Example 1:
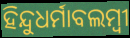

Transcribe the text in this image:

ହିନ୍ଦୁଧର୍ମାବଲମ୍ବୀ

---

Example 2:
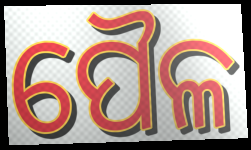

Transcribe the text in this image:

ପୈଳ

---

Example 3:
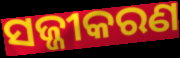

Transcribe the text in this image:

ସଜ୍ଜୀକରଣ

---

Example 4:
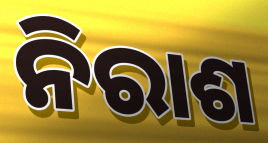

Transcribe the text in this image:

ନିରାଶ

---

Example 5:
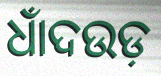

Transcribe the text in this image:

ଧାଁଦଉଡ଼